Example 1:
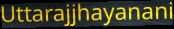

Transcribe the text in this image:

Uttarajjhayanani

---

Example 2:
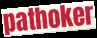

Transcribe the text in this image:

pathoker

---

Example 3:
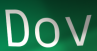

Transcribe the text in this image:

Dov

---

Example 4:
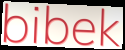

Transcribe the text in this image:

bibek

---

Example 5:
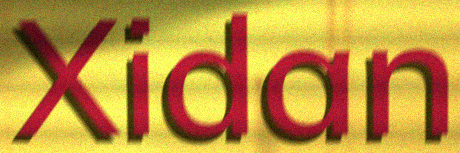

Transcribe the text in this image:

Xidan